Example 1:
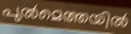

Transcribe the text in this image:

പുൽമെത്തയിൽ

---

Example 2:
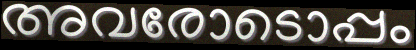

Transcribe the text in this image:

അവരോടൊപ്പം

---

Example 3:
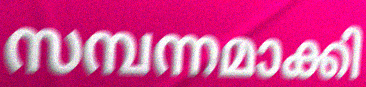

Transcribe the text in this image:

സമ്പന്നമാക്കി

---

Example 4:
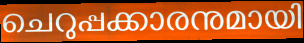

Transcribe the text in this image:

ചെറുപ്പക്കാരനുമായി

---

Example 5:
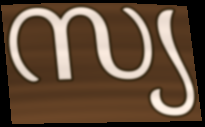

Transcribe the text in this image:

സ്യ